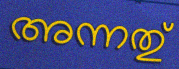
അന്നതു്